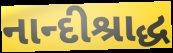
નાન્દીશ્રાદ્ધ